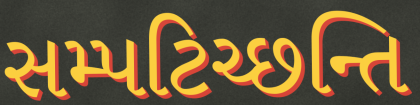
સમ્પટિચ્છન્તિ